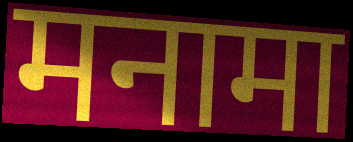
मनामा